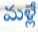
మళ్లే